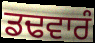
ਡਢਵਾਰੰ